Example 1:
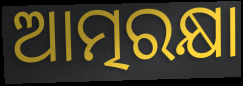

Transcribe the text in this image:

ଆତ୍ମରକ୍ଷା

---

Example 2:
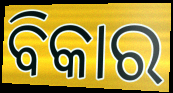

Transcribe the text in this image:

ବିକାର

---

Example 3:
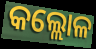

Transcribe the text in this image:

କଲ୍ଲୋଳ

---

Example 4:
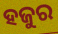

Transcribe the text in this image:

ହଜୁର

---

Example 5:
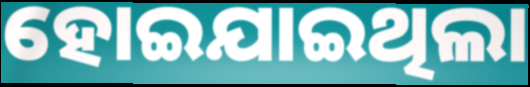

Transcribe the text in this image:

ହୋଇଯାଇଥିଲା